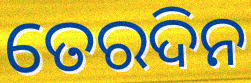
ତେରଦିନ